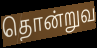
தொன்றுவ